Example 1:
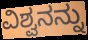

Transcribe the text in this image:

ವಿಶ್ವನನ್ನು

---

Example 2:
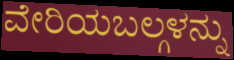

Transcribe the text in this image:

ವೇರಿಯಬಲ್ಗಳನ್ನು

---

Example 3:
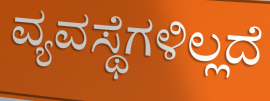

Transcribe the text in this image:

ವ್ಯವಸ್ಥೆಗಳಿಲ್ಲದೆ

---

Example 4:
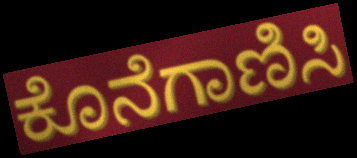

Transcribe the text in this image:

ಕೊನೆಗಾಣಿಸಿ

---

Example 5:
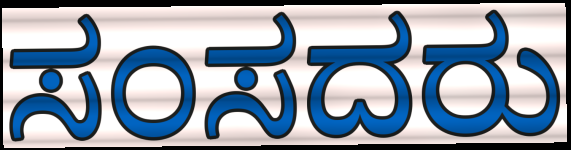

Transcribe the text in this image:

ಸಂಸದರು